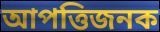
আপত্তিজনক